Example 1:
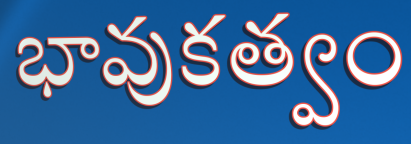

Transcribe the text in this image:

భావుకత్వం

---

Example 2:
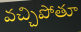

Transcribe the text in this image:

వచ్చిపోతూ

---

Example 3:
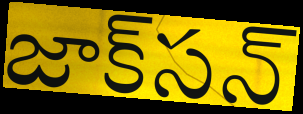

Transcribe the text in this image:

జాక్‌సన్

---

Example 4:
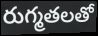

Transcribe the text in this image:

రుగ్మతలతో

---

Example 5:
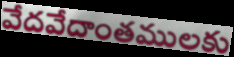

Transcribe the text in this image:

వేదవేదాంతములకు